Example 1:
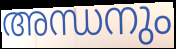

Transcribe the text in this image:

അന്ധനും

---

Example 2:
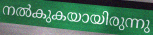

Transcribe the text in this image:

നൽകുകയായിരുന്നു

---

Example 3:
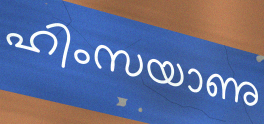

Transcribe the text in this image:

ഹിംസയാണു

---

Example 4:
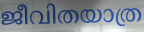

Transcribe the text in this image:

ജീവിതയാത്ര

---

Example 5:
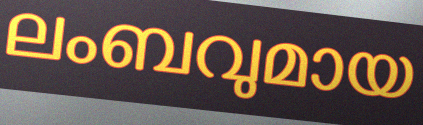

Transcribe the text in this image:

ലംബവുമായ